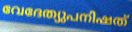
വേദേത്യുപനിഷത്